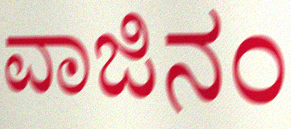
ವಾಜಿನಂ